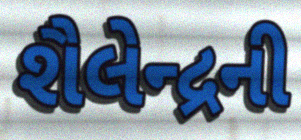
શૈલેન્દ્રની